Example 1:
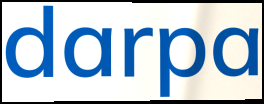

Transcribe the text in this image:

darpa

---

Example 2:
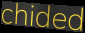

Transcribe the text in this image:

chided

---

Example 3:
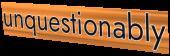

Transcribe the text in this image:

unquestionably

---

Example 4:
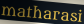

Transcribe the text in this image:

matharasi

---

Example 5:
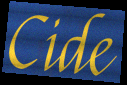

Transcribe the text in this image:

Cide